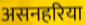
असनहरिया